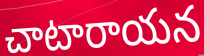
చాటారాయన